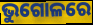
ଭୁଗୋଳରେ